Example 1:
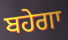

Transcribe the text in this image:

ਬਹੇਗਾ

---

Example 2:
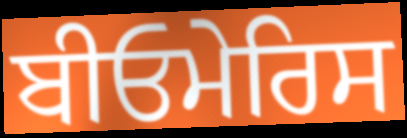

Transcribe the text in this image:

ਬੀਓਮੇਰਿਸ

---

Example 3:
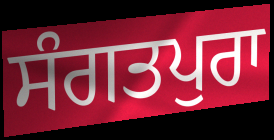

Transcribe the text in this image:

ਸੰਗਤਪੁਰਾ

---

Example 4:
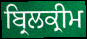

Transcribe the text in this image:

ਬ੍ਰਿਲਕ੍ਰੀਮ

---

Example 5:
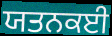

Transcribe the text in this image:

ਯਤਨਕਈ